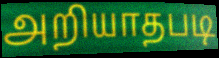
அறியாதபடி